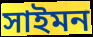
সাইমন